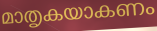
മാതൃകയാകണം